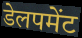
डेलपमेंट